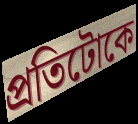
প্ৰতিটোকে